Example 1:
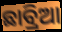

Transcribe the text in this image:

ଛାବ୍ରିଆ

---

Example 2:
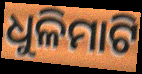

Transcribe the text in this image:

ଧୁଳିମାଟି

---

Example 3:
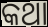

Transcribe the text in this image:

କଥା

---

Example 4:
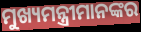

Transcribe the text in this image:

ମୁଖ୍ୟମନ୍ତ୍ରୀମାନଙ୍କର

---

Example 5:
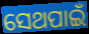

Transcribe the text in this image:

ସେଥପାଇଁ